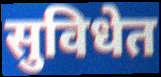
सुविधेत